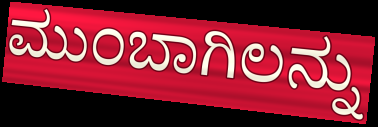
ಮುಂಬಾಗಿಲನ್ನು